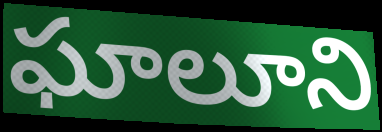
ఘాలూని